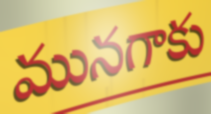
మునగాకు